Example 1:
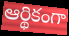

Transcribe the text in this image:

ఆర్థికంగా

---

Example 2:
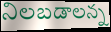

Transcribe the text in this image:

నిలబడాలన్న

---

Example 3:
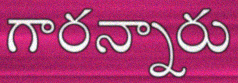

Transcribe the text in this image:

గారన్నారు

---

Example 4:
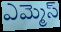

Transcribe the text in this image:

ఎమ్మెస్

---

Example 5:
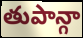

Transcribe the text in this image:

తుపాన్గా